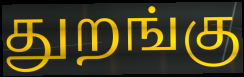
துறங்கு